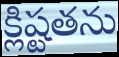
క్లిష్టతను